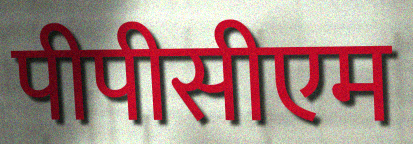
पीपीसीएम